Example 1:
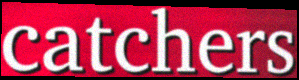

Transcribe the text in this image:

catchers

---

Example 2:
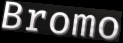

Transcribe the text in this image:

Bromo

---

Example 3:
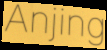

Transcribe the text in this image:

Anjing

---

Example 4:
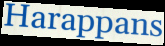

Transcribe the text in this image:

Harappans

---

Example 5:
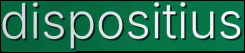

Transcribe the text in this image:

dispositius